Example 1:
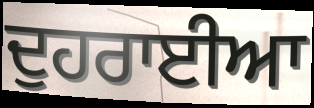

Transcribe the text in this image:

ਦੁਹਰਾਈਆ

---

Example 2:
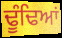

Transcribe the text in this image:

ਢੂੰਢਿਆਂ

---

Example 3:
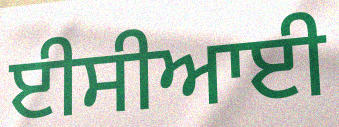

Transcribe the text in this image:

ਈਸੀਆਈ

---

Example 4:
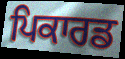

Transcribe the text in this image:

ਪਿਕਾਰਡ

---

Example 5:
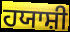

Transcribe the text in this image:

ਹਯਾਸ਼ੀ